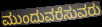
ಮುಂದುವರೆಸುವರು